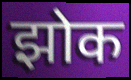
झोक